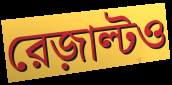
রেজ়াল্টও